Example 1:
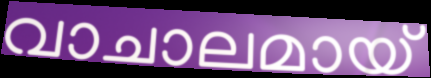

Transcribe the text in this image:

വാചാലമായ്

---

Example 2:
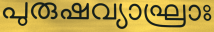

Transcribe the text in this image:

പുരുഷവ്യാഘ്രാഃ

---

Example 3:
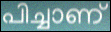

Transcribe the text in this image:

പിച്ചാണ്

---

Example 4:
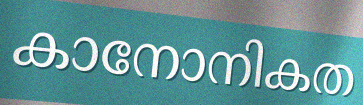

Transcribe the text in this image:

കാനോനികത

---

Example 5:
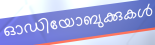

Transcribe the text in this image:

ഓഡിയോബുക്കുകൾ